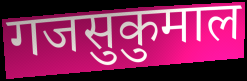
गजसुकुमाल